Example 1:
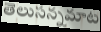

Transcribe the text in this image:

తెలుసన్నమాట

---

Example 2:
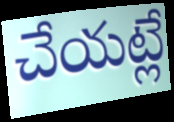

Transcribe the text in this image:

చేయట్లే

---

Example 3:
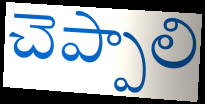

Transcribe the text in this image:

చెప్పాలి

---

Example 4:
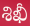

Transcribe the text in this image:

శిఖీ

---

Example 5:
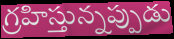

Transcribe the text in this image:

గ్రహిస్తున్నప్పుడు